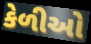
કેળીઓ